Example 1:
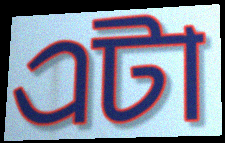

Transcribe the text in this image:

এটা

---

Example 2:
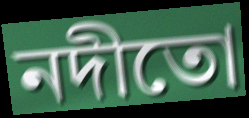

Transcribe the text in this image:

নদীতো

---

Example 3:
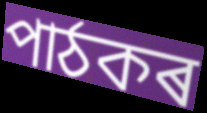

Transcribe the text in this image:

পাঠকৰ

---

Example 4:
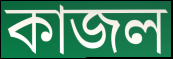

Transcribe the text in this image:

কাজল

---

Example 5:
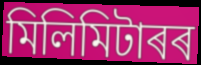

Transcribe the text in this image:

মিলিমিটাৰৰ